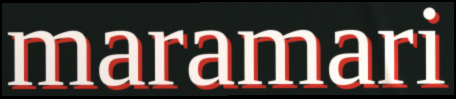
maramari